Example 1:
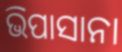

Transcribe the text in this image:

ଭିପାସାନା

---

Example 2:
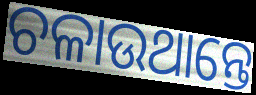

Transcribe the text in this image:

ଚଳାଉଥାନ୍ତେ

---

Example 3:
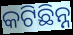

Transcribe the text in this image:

କଟିଛିନ୍ନ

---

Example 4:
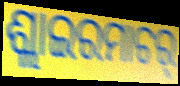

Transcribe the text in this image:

ଶ୍ଲାଇରମାଚର୍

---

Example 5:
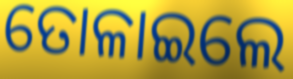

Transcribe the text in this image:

ତୋଳାଇଲେ